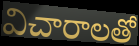
విచారాలతో